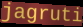
jagruti